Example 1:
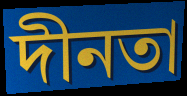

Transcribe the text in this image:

দীনতা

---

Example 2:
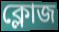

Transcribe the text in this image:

ক্লোজ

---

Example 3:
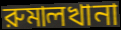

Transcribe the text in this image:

রুমালখানা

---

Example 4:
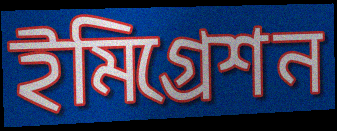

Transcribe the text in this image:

ইমিগ্রেশন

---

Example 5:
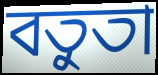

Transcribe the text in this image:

বতুতা